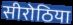
सीरोठिया